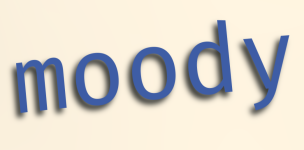
moody